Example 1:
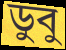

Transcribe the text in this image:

ডুবু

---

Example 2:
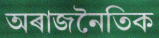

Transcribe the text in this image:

অৰাজনৈতিক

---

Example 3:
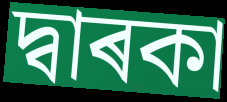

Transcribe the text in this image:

দ্বাৰকা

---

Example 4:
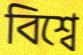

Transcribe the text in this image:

বিশ্বে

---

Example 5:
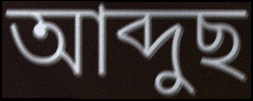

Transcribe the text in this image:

আব্দুছ